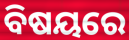
ବିଷୟରେ